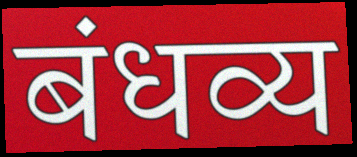
बंधव्य